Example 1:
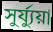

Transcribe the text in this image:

সুর্য্যুয়া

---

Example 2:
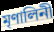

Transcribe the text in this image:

মৃণালিনী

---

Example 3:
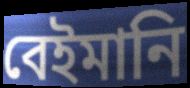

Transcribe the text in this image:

বেইমানি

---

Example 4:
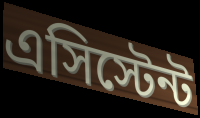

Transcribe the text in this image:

এসিস্টেন্ট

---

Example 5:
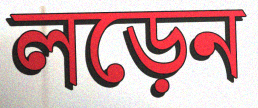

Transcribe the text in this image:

লড়েন